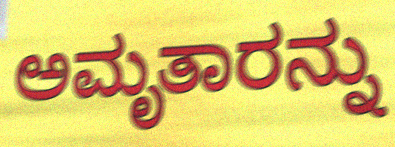
ಅಮೃತಾರನ್ನು